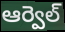
ఆర్వెల్